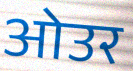
ओउर